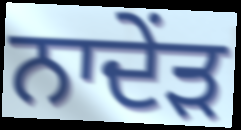
ਨਾਦੇਂੜ